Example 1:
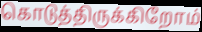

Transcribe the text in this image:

கொடுத்திருக்கிறோம்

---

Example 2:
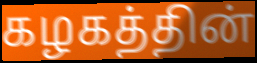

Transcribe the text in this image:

கழகத்தின்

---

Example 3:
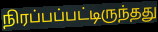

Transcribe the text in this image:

நிரப்பப்பட்டிருந்தது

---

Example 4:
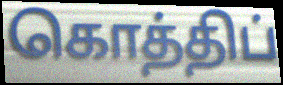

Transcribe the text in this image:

கொத்திப்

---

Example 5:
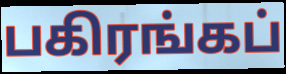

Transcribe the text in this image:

பகிரங்கப்